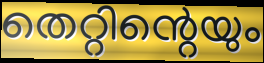
തെറ്റിന്റെയും